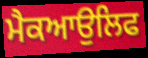
ਮੈਕਆਉਲਿਫ